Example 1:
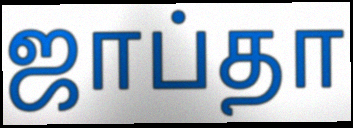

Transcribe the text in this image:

ஜாப்தா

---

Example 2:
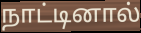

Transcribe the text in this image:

நாட்டினால்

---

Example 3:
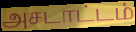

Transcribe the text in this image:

அசடாட்டம்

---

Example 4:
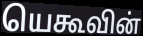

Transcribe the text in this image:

யெகூவின்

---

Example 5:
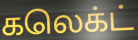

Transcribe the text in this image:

கலெக்ட்